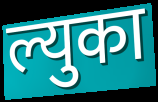
ल्युका